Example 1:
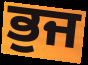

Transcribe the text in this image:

ਭੁਜ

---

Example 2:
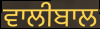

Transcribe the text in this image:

ਵਾਲੀਬਾਲ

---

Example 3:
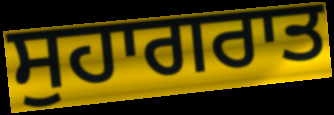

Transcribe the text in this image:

ਸੁਹਾਗਰਾਤ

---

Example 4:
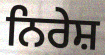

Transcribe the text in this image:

ਨਿਰੇਸ਼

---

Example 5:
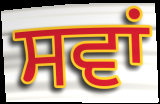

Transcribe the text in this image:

ਸਵਾਂ